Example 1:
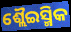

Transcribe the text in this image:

ଶ୍ଲୈଇସ୍ମିକ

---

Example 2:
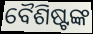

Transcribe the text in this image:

ବୈଶିଷ୍ଟଙ୍କ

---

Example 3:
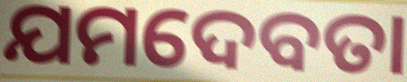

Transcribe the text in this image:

ଯମଦେବତା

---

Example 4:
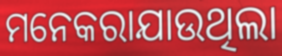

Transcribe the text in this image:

ମନେକରାଯାଉଥିଲା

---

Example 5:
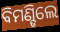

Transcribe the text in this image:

ବିମଣ୍ଡିଲେ